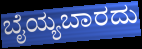
ಬೈಯ್ಯಬಾರದು